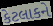
કેટલાકને